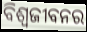
ବିଶ୍ଵଜୀବନର